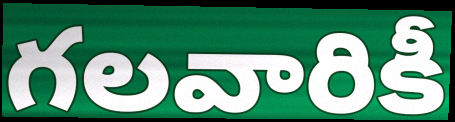
గలవారికీ